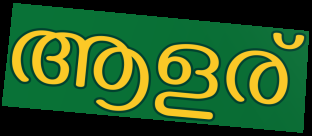
ആളര്